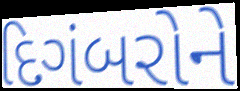
દિગંબરોને